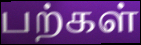
பற்கள்